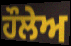
ਹੌਲੇਅ